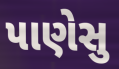
પાણેસુ